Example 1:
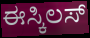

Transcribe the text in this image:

ಈಸ್ಕಿಲಸ್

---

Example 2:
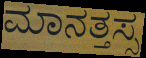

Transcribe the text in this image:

ಮಾನತ್ತಸ್ಸ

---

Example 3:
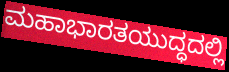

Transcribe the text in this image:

ಮಹಾಭಾರತಯುದ್ಧದಲ್ಲಿ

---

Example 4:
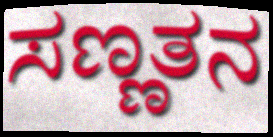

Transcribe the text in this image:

ಸಣ್ಣತನ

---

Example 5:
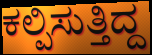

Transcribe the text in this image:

ಕಲ್ಪಿಸುತ್ತಿದ್ದ